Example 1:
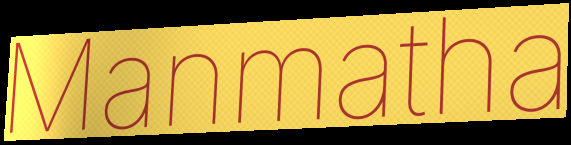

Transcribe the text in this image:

Manmatha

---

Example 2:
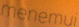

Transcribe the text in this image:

menemui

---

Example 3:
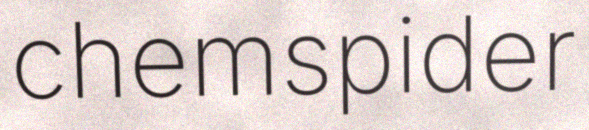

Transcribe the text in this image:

chemspider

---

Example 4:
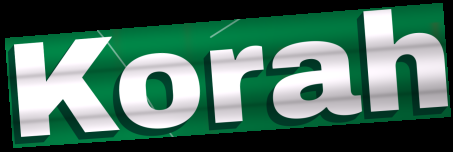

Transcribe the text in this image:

Korah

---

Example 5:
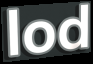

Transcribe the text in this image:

lod